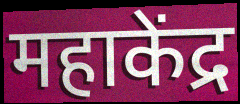
महाकेंद्र